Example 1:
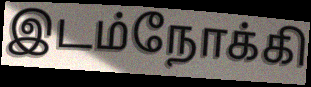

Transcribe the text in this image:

இடம்நோக்கி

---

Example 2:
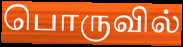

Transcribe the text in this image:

பொருவில்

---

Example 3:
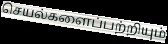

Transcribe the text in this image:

செயல்களைப்பற்றியும்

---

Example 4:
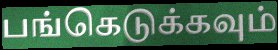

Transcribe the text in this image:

பங்கெடுக்கவும்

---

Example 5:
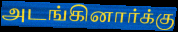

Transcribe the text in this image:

அடங்கினார்க்கு